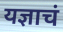
यज्ञाचं